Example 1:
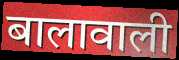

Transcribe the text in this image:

बालावाली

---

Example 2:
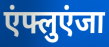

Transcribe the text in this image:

एंफ्लुएंजा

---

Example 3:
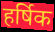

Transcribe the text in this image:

हर्षिक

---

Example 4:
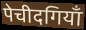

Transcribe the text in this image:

पेचीदगियाँ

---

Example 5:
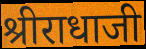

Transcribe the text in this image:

श्रीराधाजी